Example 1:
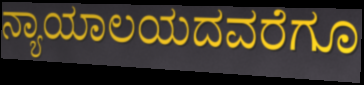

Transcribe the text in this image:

ನ್ಯಾಯಾಲಯದವರೆಗೂ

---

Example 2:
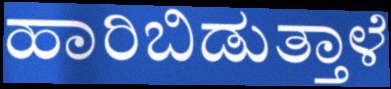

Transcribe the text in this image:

ಹಾರಿಬಿಡುತ್ತಾಳೆ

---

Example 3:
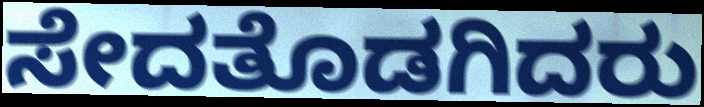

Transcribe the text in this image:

ಸೇದತೊಡಗಿದರು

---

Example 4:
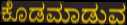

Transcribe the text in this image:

ಕೊಡಮಾಡುವ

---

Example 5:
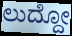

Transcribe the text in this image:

ಲುದ್ದೋ